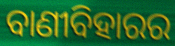
ବାଣୀବିହାରର